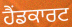
ਹੈਂਡਕਾਰਟ